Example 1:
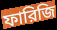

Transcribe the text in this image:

ফারিজি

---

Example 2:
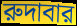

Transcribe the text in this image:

রুদাবার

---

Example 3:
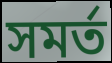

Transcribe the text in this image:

সমর্ত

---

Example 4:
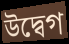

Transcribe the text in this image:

উদ্বেগ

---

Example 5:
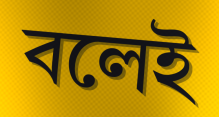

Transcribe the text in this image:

বলেই